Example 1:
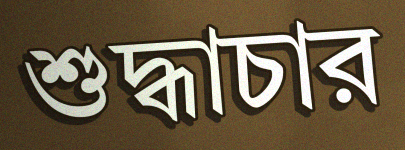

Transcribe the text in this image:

শুদ্ধাচার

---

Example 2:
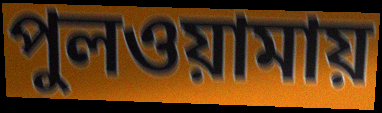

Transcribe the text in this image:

পুলওয়ামায়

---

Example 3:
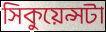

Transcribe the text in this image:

সিকুয়েন্সটা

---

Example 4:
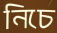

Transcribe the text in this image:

নিচে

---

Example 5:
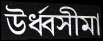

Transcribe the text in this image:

উর্ধ্বসীমা